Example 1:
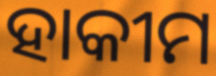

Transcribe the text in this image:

ହାକୀମ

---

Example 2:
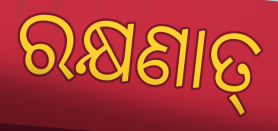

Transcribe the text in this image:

ରକ୍ଷଣାତ୍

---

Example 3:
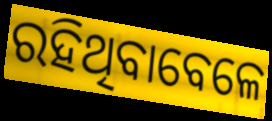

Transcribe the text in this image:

ରହିଥିବାବେଳେ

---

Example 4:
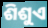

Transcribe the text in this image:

ଶିଶୁଏ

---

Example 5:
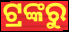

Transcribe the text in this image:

ଟ୍ରଙ୍କରୁ